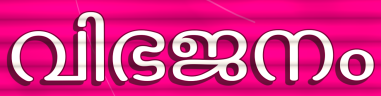
വിഭജനം